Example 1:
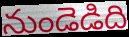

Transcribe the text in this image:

నుండెడిది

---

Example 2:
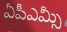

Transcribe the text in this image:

ఏపీఎమ్సీ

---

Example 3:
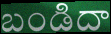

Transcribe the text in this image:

బండిదా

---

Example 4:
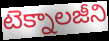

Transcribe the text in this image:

టెక్నాలజీని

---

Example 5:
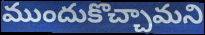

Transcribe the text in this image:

ముందుకొచ్చామని